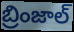
బ్రింజాల్